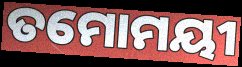
ତମୋମୟୀ